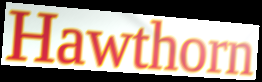
Hawthorn